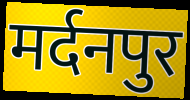
मर्दनपुर